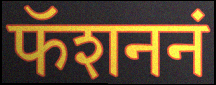
फॅशननं